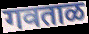
गवताळ